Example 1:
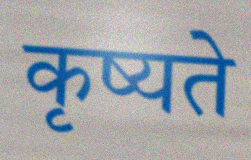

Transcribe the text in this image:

कृष्यते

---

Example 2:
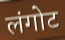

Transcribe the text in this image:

लंगोट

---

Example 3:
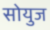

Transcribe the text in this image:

सोयुज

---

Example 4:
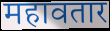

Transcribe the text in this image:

महावतार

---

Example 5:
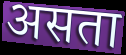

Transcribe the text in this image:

असता